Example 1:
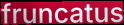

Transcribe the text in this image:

fruncatus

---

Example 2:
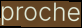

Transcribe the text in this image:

proche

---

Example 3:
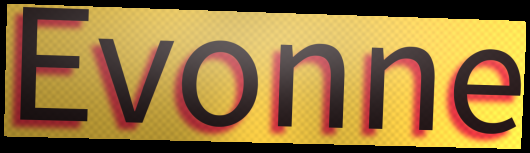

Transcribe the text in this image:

Evonne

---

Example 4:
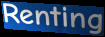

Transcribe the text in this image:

Renting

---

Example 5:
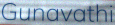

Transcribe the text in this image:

Gunavathi